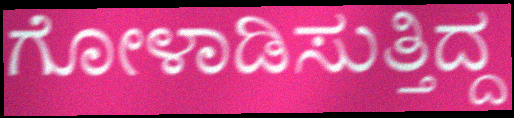
ಗೋಳಾಡಿಸುತ್ತಿದ್ದ